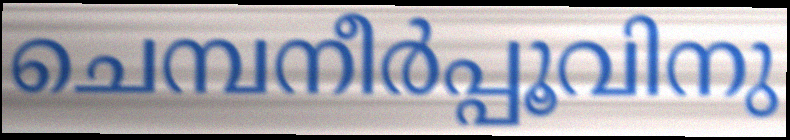
ചെമ്പനീർപ്പൂവിനു